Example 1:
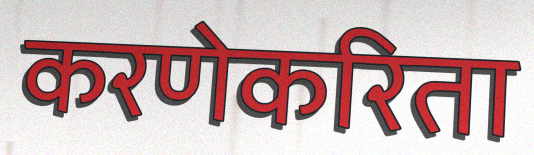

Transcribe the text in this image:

करणेकरिता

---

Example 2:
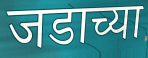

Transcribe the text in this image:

जडाच्या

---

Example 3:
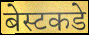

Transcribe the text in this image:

बेस्टकडे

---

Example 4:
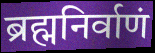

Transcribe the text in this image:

ब्रह्मनिर्वाणं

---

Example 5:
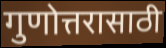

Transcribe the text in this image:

गुणोत्तरासाठी